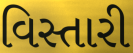
વિસ્તારી